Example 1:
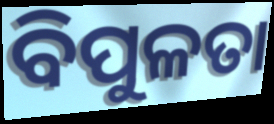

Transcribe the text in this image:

ବିପୁଳତା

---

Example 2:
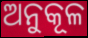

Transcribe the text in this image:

ଅନୁକୂଳ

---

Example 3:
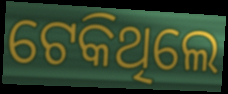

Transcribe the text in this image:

ଟେକିଥିଲେ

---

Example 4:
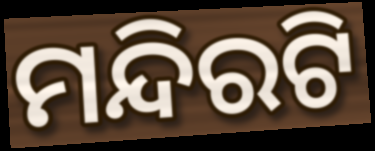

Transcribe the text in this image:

ମନ୍ଦିରଟି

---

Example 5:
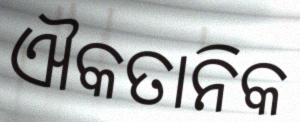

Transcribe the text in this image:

ଐକତାନିକ